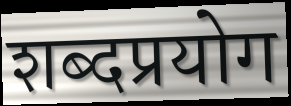
शब्दप्रयोग